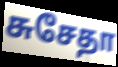
சுசேதா